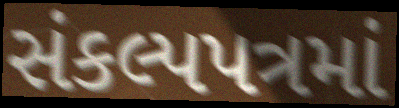
સંકલ્પપત્રમાં